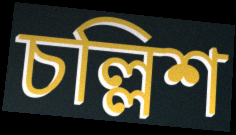
চল্লিশ